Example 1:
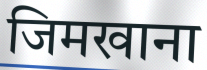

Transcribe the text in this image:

जिमखाना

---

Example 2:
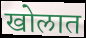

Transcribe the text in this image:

खोलात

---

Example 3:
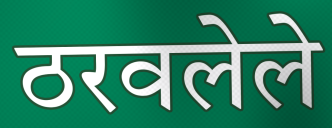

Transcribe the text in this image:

ठरवलेले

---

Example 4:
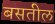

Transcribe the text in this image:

बसतील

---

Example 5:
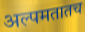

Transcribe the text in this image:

अल्पमतातच